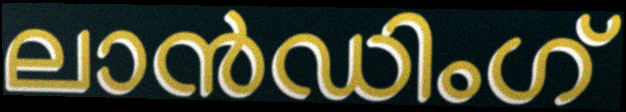
ലാൻഡിംഗ്